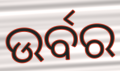
ଉର୍ବର